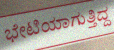
ಭೇಟಿಯಾಗುತ್ತಿದ್ದ